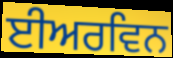
ਈਅਰਵਿਨ